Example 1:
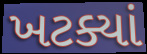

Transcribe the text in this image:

ખટક્યાં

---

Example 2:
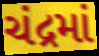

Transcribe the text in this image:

ચંદ્રમાં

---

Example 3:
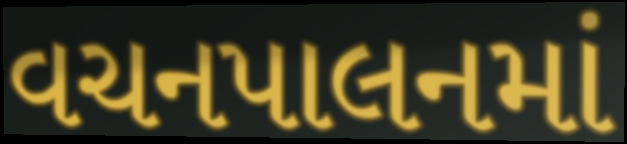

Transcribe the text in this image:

વચનપાલનમાં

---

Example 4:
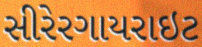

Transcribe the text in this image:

સીરેરગાયરાઇટ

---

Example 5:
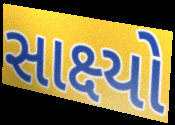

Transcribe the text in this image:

સાક્ષ્યો